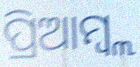
ପ୍ରିଆମ୍ବ୍ଲ